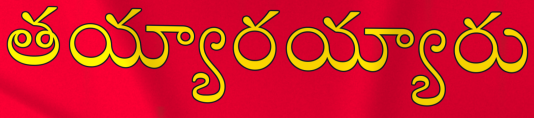
తయ్యారయ్యారు